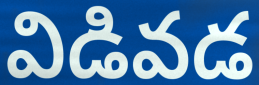
విడివడ